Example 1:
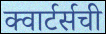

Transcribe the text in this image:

क्वार्टर्सची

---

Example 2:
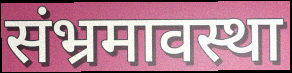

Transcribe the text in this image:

संभ्रमावस्था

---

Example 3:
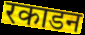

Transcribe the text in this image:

रकाडन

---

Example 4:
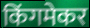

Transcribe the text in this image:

किंगमेकर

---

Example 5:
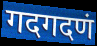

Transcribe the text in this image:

गदगदणं